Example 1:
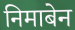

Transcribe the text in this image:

निमाबेन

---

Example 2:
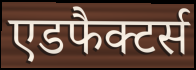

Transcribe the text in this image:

एडफैक्टर्स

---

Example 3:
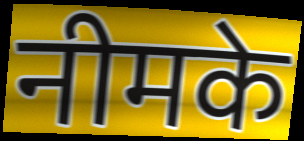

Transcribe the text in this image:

नीमके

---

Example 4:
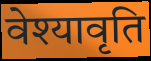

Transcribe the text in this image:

वेश्यावृति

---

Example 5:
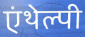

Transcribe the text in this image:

एंथेल्पी